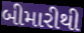
બીમારીથી